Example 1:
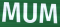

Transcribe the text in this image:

MUM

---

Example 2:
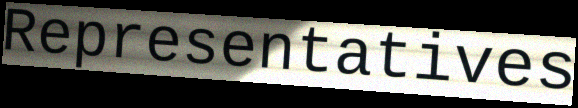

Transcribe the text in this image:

Representatives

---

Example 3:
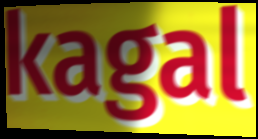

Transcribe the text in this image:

kagal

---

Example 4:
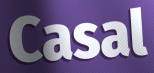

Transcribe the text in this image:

Casal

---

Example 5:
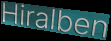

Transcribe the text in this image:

Hiralben